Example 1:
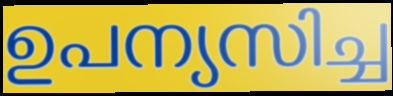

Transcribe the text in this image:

ഉപന്യസിച്ച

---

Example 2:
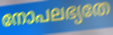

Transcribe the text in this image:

നോപലഭ്യതേ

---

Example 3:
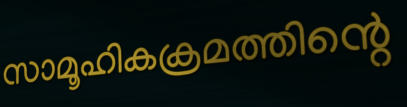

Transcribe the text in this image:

സാമൂഹികക്രമത്തിന്റെ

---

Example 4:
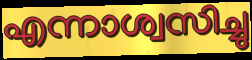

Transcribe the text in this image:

എന്നാശ്വസിച്ചു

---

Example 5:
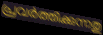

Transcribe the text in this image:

പ്രവർത്തിക്കുന്നതു